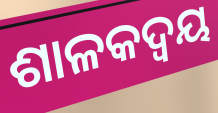
ଶାଳକଦ୍ୱୟ